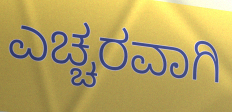
ಎಚ್ಚರವಾಗಿ